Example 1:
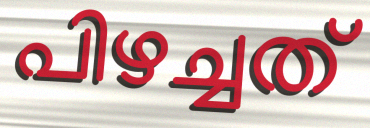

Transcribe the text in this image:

പിഴച്ചത്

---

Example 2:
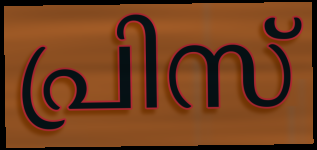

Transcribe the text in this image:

പ്രിസ്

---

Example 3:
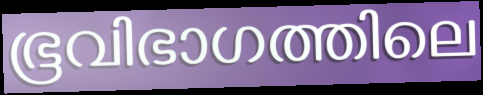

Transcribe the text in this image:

ഭൂവിഭാഗത്തിലെ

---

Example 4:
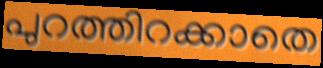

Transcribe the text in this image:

പുറത്തിറക്കാതെ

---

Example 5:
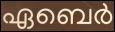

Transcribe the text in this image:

ഏബെർ